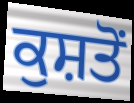
ਕੁਸ਼ਤੋਂ